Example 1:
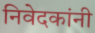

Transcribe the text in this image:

निवेदकांनी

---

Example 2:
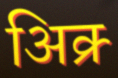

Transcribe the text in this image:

अिक्र्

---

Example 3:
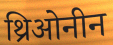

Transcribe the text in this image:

थ्रिओनीन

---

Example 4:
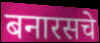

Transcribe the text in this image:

बनारसचे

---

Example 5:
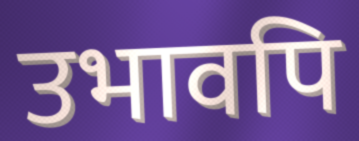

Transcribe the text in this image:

उभावपि